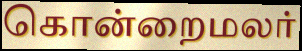
கொன்றைமலர்